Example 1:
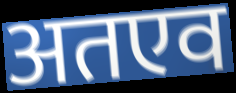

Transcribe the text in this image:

अतएव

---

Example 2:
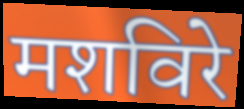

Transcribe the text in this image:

मशविरे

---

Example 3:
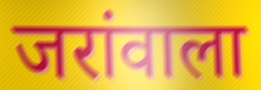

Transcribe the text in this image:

जरांवाला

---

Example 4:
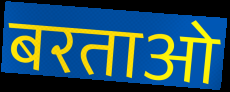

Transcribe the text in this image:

बरताओ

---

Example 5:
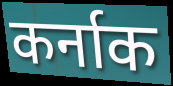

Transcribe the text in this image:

कर्नाक